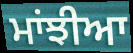
ਮਾਂਝੀਆ